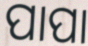
ପାପା